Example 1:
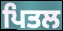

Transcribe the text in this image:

ਪਿਤਲ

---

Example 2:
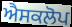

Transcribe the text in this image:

ਐਸਕਲੋਪ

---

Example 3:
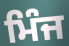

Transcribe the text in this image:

ਮਿੰਜ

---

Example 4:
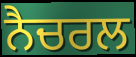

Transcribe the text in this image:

ਨੈਚਰਲ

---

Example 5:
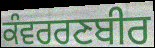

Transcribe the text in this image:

ਕੰਵਰਰਣਬੀਰ